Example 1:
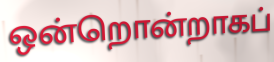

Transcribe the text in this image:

ஒன்றொன்றாகப்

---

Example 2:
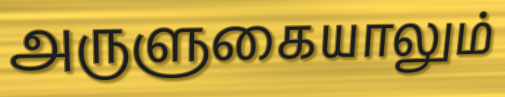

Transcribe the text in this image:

அருளுகையாலும்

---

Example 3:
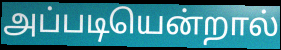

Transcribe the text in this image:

அப்படியென்றால்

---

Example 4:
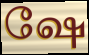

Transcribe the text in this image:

ஷே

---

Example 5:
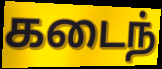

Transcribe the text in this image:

கடைந்